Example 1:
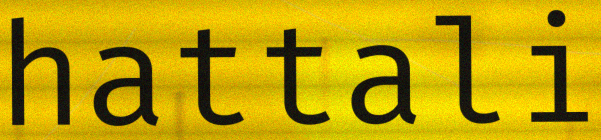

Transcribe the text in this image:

hattali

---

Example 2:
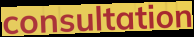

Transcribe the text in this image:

consultation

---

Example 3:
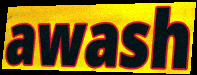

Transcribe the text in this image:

awash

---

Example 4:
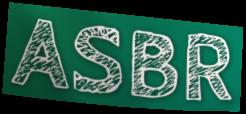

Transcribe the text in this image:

ASBR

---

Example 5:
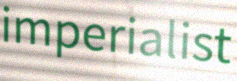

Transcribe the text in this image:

imperialist